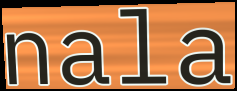
nala